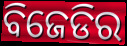
ବିଜେଡିର